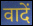
वादें